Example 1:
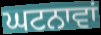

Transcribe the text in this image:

ਘਟਨਾਵਾਂ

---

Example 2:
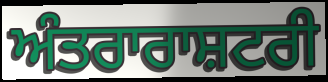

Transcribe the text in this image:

ਅੰਤਰਾਰਾਸ਼ਟਰੀ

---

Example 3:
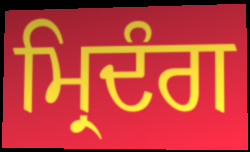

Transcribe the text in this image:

ਮ੍ਰਿਦੰਗ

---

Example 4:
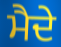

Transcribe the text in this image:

ਮੈਦੇ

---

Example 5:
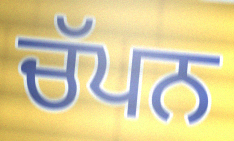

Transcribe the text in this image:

ਚੱਪਨ